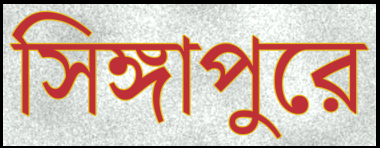
সিঙ্গাপুরে